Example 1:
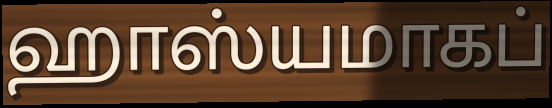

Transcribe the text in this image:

ஹாஸ்யமாகப்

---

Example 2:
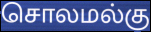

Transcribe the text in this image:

சொலமல்கு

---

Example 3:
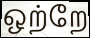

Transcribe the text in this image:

ஒற்றே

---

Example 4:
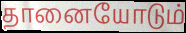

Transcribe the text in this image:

தானையோடும்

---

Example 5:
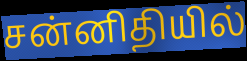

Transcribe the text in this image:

சன்னிதியில்